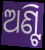
ଅଣ୍ଟି